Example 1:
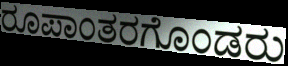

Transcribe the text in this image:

ರೂಪಾಂತರಗೊಂಡರು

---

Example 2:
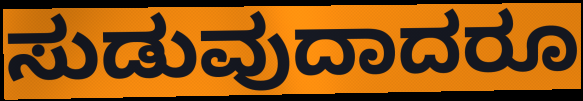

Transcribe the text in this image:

ಸುಡುವುದಾದರೂ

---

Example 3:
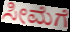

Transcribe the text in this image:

ಸೀಮೆಗೆ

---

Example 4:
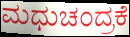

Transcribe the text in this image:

ಮಧುಚಂದ್ರಕೆ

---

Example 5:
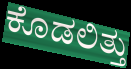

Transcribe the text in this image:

ಕೊಡಲಿತ್ತು